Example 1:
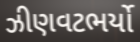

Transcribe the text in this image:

ઝીણવટભર્યો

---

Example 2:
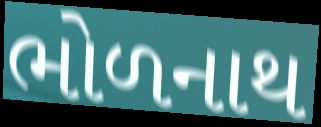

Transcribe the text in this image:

ભોળનાથ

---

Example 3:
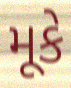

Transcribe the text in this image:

મૂકે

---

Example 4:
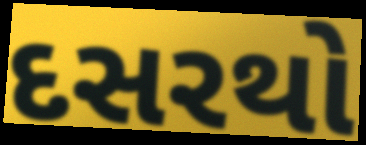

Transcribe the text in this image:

દસરથો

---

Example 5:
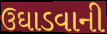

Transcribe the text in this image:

ઉઘાડવાની